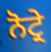
ਨੋਟ੍ਰੇ